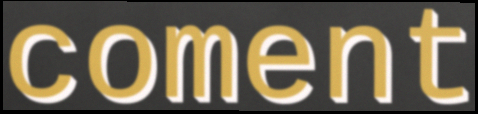
coment